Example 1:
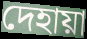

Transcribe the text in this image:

দেহায়া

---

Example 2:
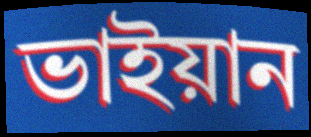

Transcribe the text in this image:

ভাইয়ান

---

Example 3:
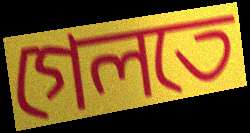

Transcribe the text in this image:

গেলতে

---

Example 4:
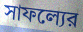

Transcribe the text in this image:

সাফল্যের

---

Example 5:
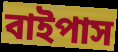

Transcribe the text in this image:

বাইপাস